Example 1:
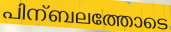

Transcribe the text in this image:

പിന്ബലത്തോടെ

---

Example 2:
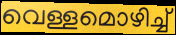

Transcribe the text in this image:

വെള്ളമൊഴിച്ച്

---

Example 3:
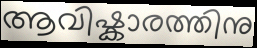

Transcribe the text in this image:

ആവിഷ്കാരത്തിനു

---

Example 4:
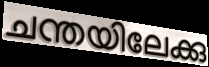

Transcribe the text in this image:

ചന്തയിലേക്കു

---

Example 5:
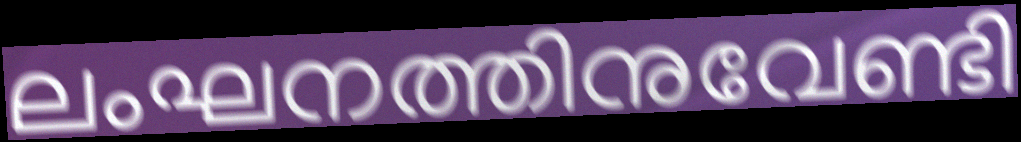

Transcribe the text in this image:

ലംഘനത്തിനുവേണ്ടി